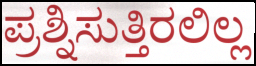
ಪ್ರಶ್ನಿಸುತ್ತಿರಲಿಲ್ಲ